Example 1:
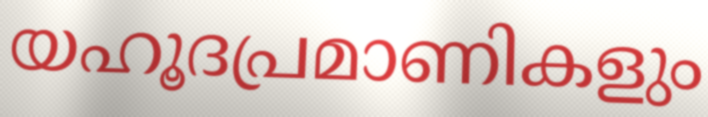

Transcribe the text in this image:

യഹൂദപ്രമാണികളും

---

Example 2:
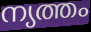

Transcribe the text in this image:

ന്യത്തം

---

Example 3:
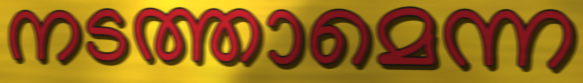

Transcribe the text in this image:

നടത്താമെന്ന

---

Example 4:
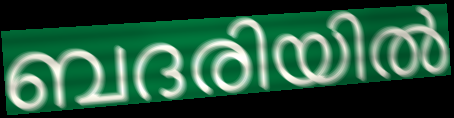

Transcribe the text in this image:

ബദരിയിൽ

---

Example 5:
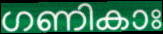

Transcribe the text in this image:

ഗണികാഃ